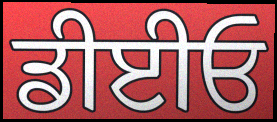
ਡੀਈਓ